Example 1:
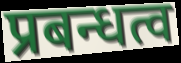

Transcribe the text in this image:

प्रबन्धत्व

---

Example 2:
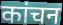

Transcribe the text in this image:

कांचन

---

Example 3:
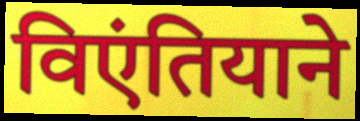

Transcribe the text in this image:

विएंतियाने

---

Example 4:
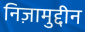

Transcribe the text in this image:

निज़ामुद्दीन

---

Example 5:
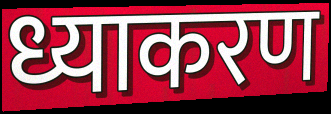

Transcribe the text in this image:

ध्याकरण